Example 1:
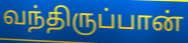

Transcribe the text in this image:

வந்திருப்பான்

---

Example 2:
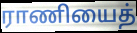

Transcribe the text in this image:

ராணியைத்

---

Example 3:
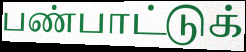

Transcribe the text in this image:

பண்பாட்டுக்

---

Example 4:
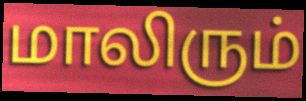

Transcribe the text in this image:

மாலிரும்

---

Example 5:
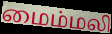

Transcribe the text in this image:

மைம்மலி